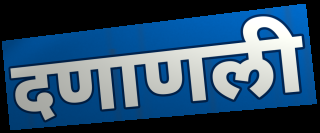
दणाणली